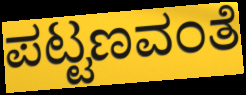
ಪಟ್ಟಣವಂತೆ